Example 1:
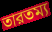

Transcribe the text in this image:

তারতম্য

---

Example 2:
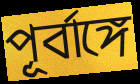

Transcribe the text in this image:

পূর্বাঙ্গে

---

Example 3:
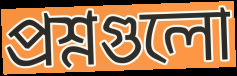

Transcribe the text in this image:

প্রশ্নগুলো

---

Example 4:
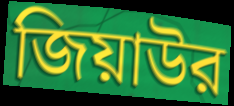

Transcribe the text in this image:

জিয়াউর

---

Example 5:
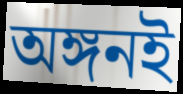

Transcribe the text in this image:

অঙ্গনই